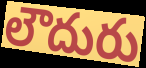
లౌదురు